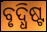
ବୃଦ୍ଧିଷ୍ଟ